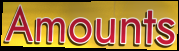
Amounts